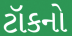
ટૉકનો